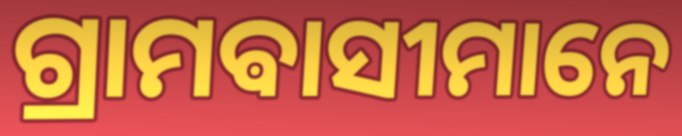
ଗ୍ରାମଵାସୀମାନେ